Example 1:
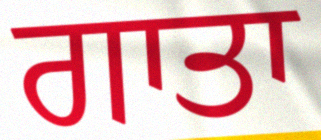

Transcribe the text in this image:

ਗਾਤਾ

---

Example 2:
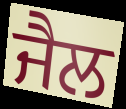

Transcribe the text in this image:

ਜੈਲ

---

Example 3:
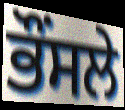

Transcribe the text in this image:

ਭੌਂਸਲੇ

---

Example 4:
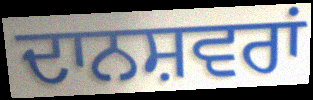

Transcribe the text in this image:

ਦਾਨਸ਼ਵਰਾਂ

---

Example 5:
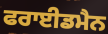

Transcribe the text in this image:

ਫਰਾਈਡਮੈਨ